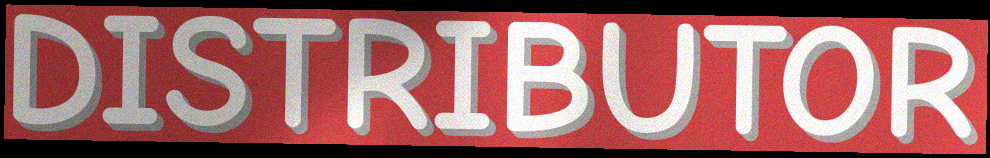
DISTRIBUTOR